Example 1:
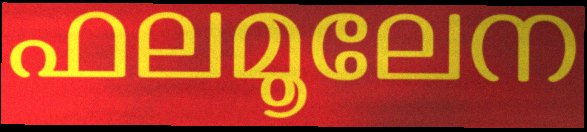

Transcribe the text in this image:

ഫലമൂലേന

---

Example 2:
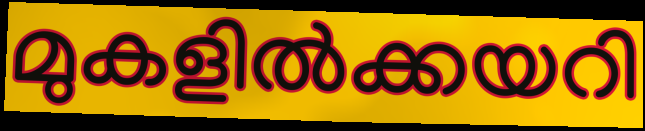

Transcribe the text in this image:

മുകളിൽക്കയറി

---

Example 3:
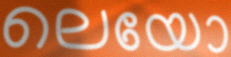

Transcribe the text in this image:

ലെയോ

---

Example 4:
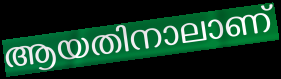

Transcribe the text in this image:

ആയതിനാലാണ്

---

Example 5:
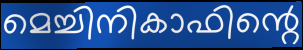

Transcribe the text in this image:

മെച്ചിനികാഫിന്റെ